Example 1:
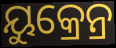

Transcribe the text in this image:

ୟୁକ୍ରେନ୍ର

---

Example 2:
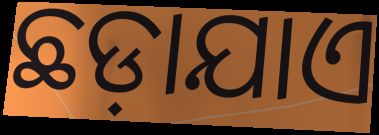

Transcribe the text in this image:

ଛଡ଼ାଯାଏ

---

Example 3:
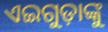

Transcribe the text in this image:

ଏଇଗୁଡ଼ାଙ୍କୁ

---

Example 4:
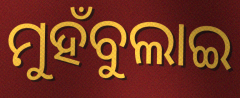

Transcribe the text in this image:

ମୁହଁବୁଲାଇ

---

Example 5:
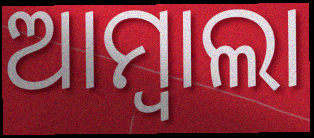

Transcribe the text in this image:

ଆମ୍ବାଲା